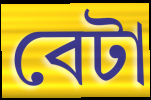
বেটা